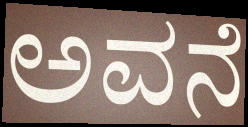
ಅವನೆ